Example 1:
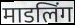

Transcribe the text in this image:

माडलिंग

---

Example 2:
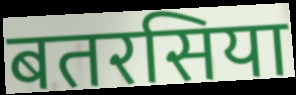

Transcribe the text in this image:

बतरसिया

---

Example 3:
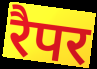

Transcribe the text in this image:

रैपर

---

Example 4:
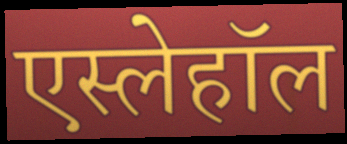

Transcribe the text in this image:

एस्लेहॉल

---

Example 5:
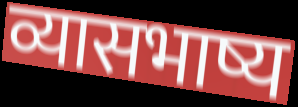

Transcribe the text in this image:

व्यासभाष्य